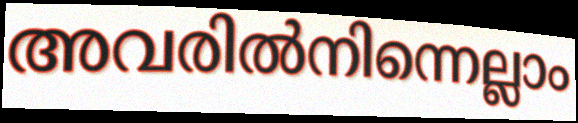
അവരിൽനിന്നെല്ലാം